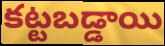
కట్టబడ్డాయి